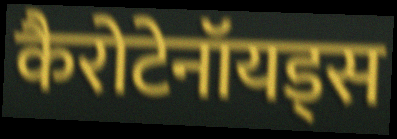
कैरोटेनॉयड्स